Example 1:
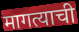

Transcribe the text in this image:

मागत्याची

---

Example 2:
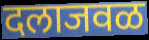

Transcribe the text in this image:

दलाजवळ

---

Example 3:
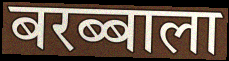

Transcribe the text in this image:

बरब्बाला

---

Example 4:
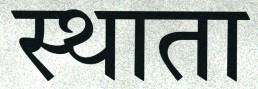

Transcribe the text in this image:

स्थाता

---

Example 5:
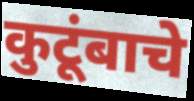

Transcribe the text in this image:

कुटूंबाचे